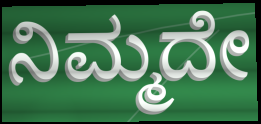
ನಿಮ್ಮದೇ